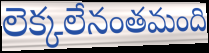
లెక్కలేనంతమంది